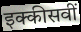
इक्‍कीसवीं